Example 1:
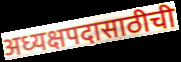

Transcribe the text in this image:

अध्यक्षपदासाठीची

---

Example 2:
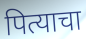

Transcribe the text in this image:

पित्याचा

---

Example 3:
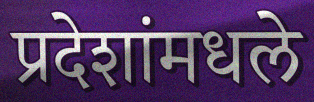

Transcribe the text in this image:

प्रदेशांमधले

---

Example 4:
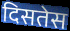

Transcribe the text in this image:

दिसतेस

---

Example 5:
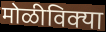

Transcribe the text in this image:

मोळीविक्या